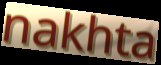
nakhta